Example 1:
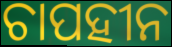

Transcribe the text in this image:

ଚାପହୀନ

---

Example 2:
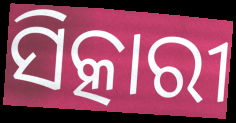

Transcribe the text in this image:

ସିତ୍କାରୀ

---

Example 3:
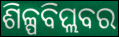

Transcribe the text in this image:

ଶିଳ୍ପବିପ୍ଲବର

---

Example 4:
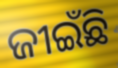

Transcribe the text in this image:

ଜୀଇଁଛି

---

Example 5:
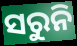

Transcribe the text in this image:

ସରୁନି